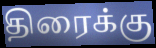
திரைக்கு